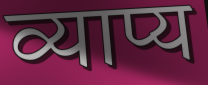
व्याप्य